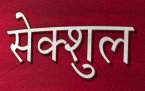
सेक्शुल